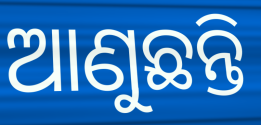
ଆଣୁଛନ୍ତି